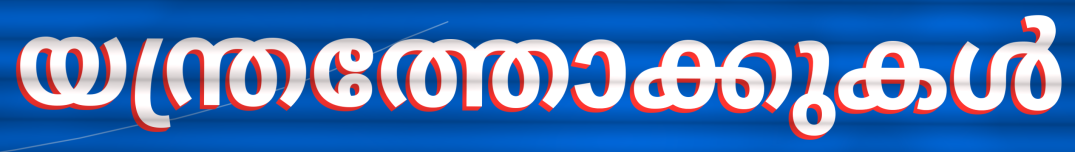
യന്ത്രത്തോക്കുകൾ